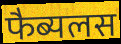
फैब्यलस